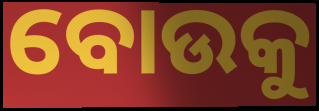
ବୋଉକୁ